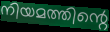
നിയമത്തിന്റെ